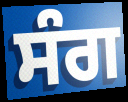
ਸੰਗ